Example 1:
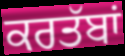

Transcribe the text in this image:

ਕਰਤੱਬਾਂ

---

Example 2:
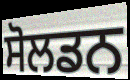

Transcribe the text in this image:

ਸੋਲਡਨ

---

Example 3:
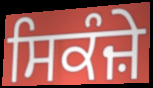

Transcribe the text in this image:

ਸਿਕੰਜ਼ੇ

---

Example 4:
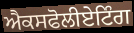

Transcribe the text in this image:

ਐਕਸਫੋਲੀਏਟਿੰਗ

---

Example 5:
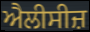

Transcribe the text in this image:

ਐਲੀਸੀਜ਼